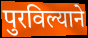
पुरविल्याने